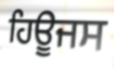
ਹਿਊਜਸ